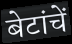
बेटांचें